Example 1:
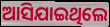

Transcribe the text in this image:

ଆସିଯାଇଥିଲେ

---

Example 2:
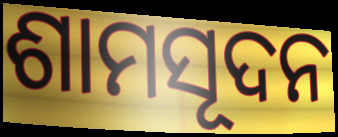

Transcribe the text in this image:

ଶାମସୂଦନ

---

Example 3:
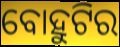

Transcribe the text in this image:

ବୋହୁଟିର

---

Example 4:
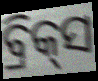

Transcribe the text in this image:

ବ୍ରିକ୍‌ସ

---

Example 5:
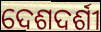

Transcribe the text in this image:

ଦେଶଦର୍ଶୀ